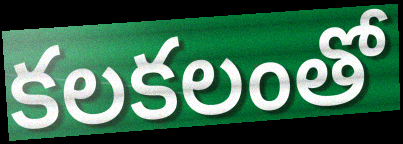
కలకలంతో